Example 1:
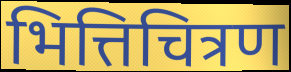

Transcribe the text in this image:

भित्तिचित्रण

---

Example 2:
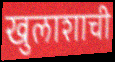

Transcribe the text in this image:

खुलाशाची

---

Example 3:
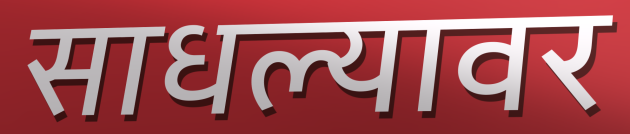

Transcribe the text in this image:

साधल्यावर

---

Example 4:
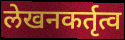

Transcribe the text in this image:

लेखनकर्तृत्व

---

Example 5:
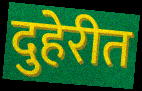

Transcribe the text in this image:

दुहेरीत